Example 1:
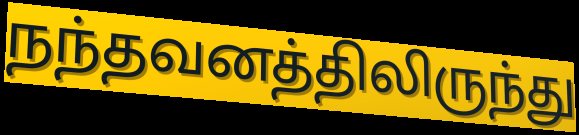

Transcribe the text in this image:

நந்தவனத்திலிருந்து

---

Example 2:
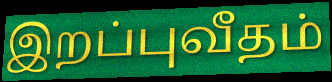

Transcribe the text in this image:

இறப்புவீதம்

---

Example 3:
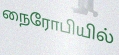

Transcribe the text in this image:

நைரோபியில்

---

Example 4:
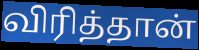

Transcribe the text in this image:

விரித்தான்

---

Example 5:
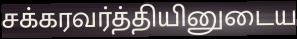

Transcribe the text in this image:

சக்கரவர்த்தியினுடைய